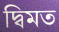
দ্বিমত